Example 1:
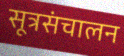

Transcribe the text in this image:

सूत्रसंचालन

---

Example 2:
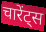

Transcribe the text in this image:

चारेंट्स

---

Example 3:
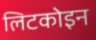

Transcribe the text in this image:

लिटकोइन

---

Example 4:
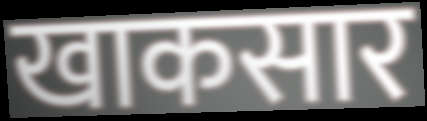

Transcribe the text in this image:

खाकसार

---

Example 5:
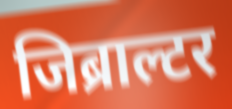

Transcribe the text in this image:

जिब्राल्टर